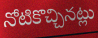
నోటికొచ్చినట్లు